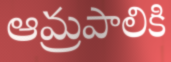
ఆమ్రపాలికి